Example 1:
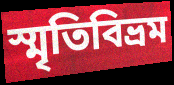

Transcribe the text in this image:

স্মৃতিবিভ্রম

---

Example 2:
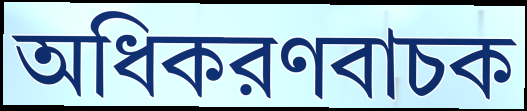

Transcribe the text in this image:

অধিকরণবাচক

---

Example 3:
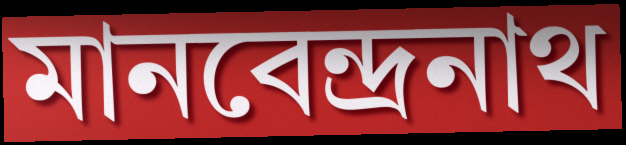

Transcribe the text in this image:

মানবেন্দ্রনাথ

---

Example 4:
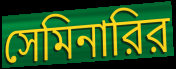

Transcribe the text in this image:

সেমিনারির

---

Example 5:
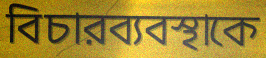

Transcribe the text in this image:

বিচারব্যবস্থাকে